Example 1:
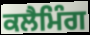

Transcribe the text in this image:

ਕਲੈਮਿੰਗ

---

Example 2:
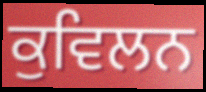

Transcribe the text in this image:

ਕੁਵਿਲਨ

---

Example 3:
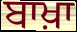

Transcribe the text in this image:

ਬਾਖ਼ਾ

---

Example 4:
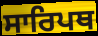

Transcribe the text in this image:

ਸਾਰਿਪਥ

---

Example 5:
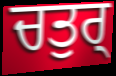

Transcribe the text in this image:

ਚਤੁਰ੍